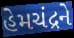
હેમચંદ્રને